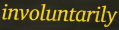
involuntarily